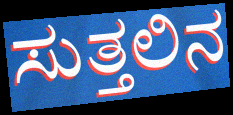
ಸುತ್ತಲಿನ